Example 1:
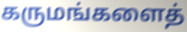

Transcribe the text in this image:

கருமங்களைத்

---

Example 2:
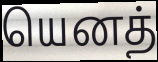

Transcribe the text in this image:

யெனத்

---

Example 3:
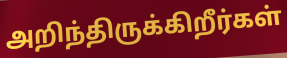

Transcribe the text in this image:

அறிந்திருக்கிறீர்கள்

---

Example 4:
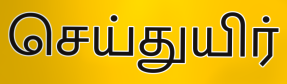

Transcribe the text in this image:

செய்துயிர்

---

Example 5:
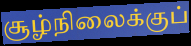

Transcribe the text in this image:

சூழ்நிலைக்குப்